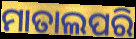
ମାତାଲପରି